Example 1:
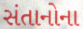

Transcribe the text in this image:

સંતાનોના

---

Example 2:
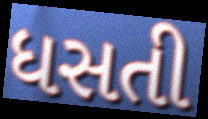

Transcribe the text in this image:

ધસતી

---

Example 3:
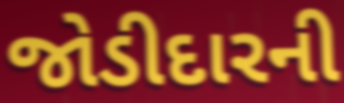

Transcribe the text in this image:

જોડીદારની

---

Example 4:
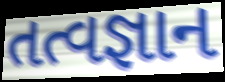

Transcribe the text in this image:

તત્વજ્ઞાન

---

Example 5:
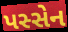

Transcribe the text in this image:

પસ્સેન